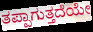
ತಪ್ಪಾಗುತ್ತದೆಯೇ